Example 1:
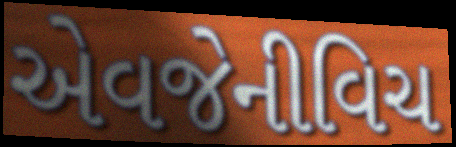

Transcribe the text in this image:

એવજેનીવિચ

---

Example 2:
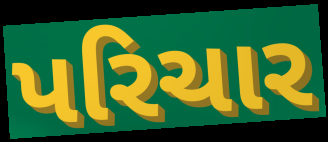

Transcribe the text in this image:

પરિચાર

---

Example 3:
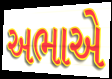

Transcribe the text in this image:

અભાએ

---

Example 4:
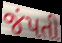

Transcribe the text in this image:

જંપતી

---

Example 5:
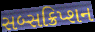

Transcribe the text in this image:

સબ્સક્રિપ્શન